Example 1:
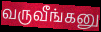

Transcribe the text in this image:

வருவீங்கனு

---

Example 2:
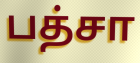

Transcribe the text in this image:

பத்சா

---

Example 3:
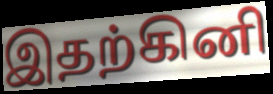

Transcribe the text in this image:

இதற்கினி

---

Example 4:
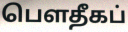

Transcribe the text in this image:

பௌதீகப்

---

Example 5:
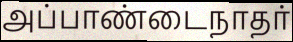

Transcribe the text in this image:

அப்பாண்டைநாதர்